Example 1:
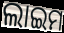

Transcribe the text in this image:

ଲାଇମ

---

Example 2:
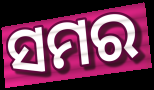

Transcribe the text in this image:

ସମର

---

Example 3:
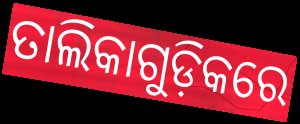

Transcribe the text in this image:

ତାଲିକାଗୁଡ଼ିକରେ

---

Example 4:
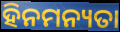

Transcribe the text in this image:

ହିନମନ୍ୟତା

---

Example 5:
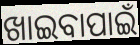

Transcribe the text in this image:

ଖାଇବାପାଇଁ